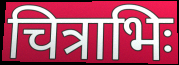
चित्राभिः